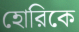
হোরিকে